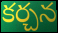
కర్చన